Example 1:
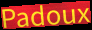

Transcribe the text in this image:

Padoux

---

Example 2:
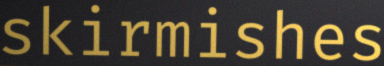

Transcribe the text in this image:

skirmishes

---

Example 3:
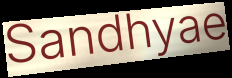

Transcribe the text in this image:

Sandhyae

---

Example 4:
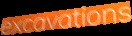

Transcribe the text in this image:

excavations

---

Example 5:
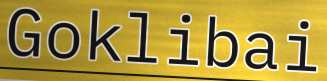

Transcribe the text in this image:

Goklibai